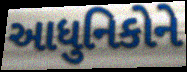
આધુનિકોને